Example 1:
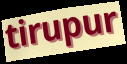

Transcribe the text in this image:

tirupur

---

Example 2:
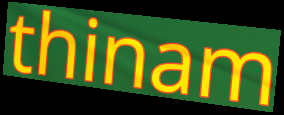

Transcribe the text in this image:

thinam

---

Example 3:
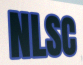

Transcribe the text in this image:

NLSC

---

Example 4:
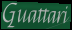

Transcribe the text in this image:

Guattari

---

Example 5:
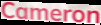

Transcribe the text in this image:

Cameron